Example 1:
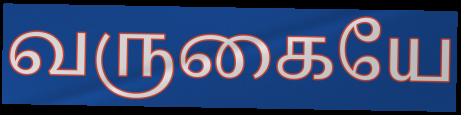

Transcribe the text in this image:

வருகையே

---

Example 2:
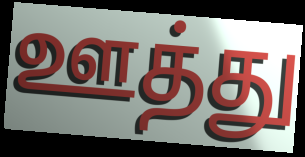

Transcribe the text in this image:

ஊத்து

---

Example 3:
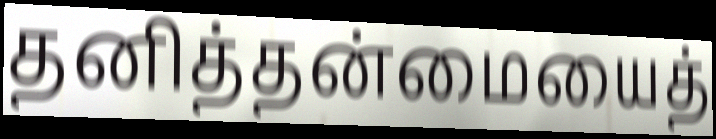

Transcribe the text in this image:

தனித்தன்மையைத்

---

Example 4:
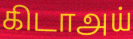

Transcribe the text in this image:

கிடாஅய்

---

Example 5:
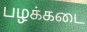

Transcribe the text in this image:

பழக்கடை